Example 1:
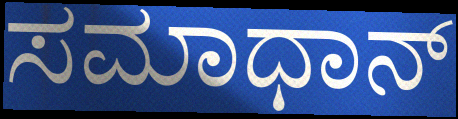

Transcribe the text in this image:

ಸಮಾಧಾನ್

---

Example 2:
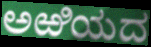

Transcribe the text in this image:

ಅಱಿಯದ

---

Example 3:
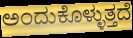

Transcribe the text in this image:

ಅಂದುಕೊಳ್ಳುತ್ತದೆ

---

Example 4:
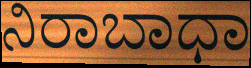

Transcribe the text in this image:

ನಿರಾಬಾಧಾ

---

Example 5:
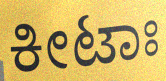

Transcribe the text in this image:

ಕೀಟಾಃ